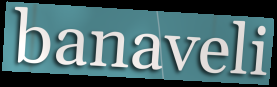
banaveli